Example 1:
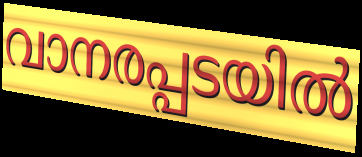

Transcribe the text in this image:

വാനരപ്പടയിൽ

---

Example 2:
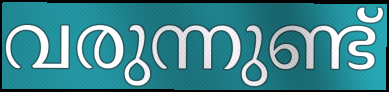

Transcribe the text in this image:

വരുന്നുണ്ട്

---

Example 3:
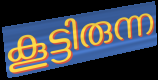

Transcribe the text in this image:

കൂട്ടിരുന്ന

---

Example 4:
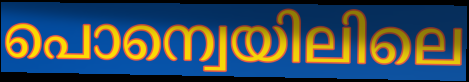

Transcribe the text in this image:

പൊന്വെയിലിലെ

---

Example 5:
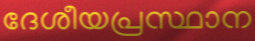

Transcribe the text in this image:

ദേശീയപ്രസ്ഥാന